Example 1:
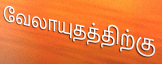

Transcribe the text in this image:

வேலாயுதத்திற்கு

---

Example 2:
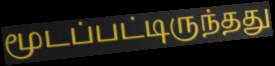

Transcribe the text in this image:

மூடப்பட்டிருந்தது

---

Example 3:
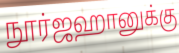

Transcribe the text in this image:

நூர்ஜஹானுக்கு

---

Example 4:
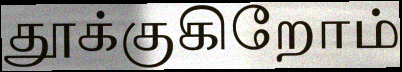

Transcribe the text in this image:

தூக்குகிறோம்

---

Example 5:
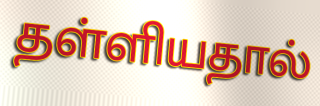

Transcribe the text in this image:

தள்ளியதால்